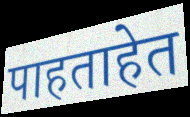
पाहताहेत